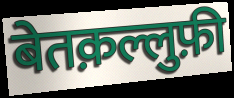
बेतक़ल्लुफ़ी